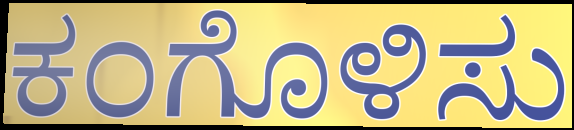
ಕಂಗೊಳಿಸು